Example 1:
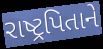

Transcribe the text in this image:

રાષ્ટ્રપિતાને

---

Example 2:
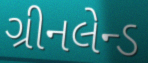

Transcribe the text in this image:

ગ્રીનલેન્ડ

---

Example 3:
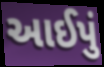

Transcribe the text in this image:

આઈપું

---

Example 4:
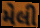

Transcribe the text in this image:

મેલી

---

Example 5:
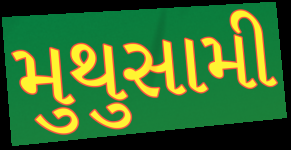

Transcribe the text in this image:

મુથુસામી